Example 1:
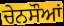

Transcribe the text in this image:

ਚੇਨਸੌਆਂ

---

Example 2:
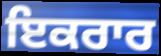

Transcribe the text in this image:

ਇਕਰਾਰ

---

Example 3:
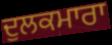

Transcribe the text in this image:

ਦੁਲਕਮਾਰਾ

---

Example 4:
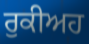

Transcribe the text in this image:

ਰੁਕੀਅਹ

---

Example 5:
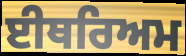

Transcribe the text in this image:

ਈਥਰਿਅਮ